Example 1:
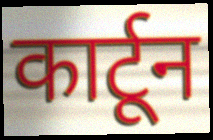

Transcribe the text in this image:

कार्टून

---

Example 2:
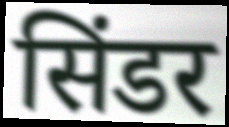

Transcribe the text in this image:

सिंडर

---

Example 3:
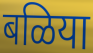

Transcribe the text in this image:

बळिया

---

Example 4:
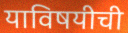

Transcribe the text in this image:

याविषयीची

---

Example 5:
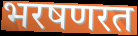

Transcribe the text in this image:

भरषणरत